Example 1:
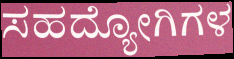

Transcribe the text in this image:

ಸಹದ್ಯೋಗಿಗಳ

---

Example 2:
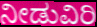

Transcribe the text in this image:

ನೀಡುವಿರಿ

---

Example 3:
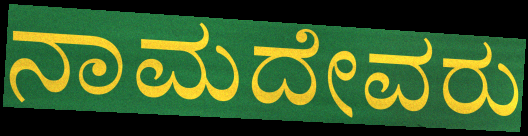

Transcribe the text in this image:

ನಾಮದೇವರು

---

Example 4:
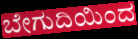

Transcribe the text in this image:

ಬೇಗುದಿಯಿಂದ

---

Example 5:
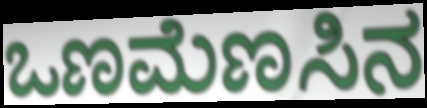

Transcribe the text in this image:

ಒಣಮೆಣಸಿನ